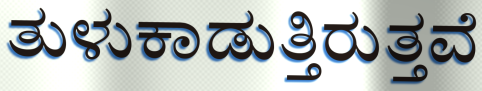
ತುಳುಕಾಡುತ್ತಿರುತ್ತವೆ